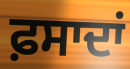
ਫ਼ਸਾਦਾਂ